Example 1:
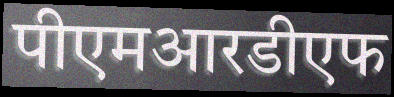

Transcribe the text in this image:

पीएमआरडीएफ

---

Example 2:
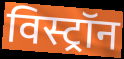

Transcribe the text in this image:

विस्ट्रॉन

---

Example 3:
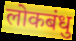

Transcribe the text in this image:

लोकबंधु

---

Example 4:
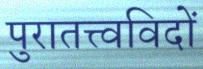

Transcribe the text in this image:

पुरातत्त्वविदों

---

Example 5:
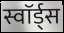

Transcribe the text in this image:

स्‍वॉर्ड्स